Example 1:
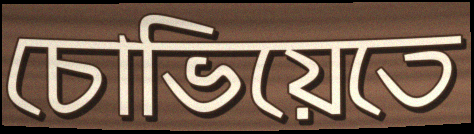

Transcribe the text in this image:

চোভিয়েতে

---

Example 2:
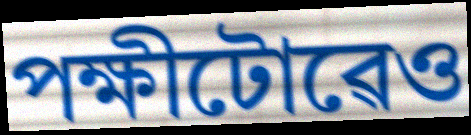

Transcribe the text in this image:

পক্ষীটোৱেও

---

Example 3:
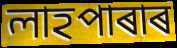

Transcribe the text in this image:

লাহপাৰাৰ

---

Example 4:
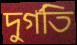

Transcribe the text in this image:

দুৰ্গতি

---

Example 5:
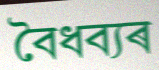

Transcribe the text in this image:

বৈধব্যৰ